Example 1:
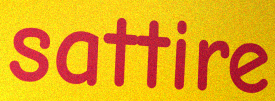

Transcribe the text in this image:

sattire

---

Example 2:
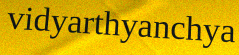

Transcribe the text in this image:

vidyarthyanchya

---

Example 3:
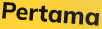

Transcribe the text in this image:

Pertama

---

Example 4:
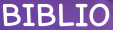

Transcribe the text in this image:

BIBLIO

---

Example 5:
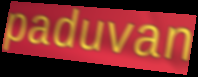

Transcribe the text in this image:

paduvan